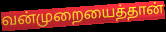
வன்முறையைத்தான்